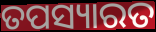
ତପସ୍ୟାରତ